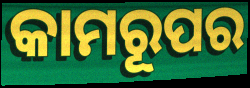
କାମରୂପର